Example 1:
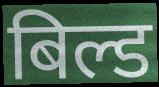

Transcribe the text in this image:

बिल्ड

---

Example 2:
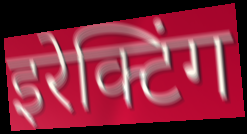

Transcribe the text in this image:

इरेक्टिंग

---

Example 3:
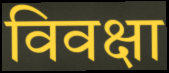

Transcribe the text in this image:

विवक्षा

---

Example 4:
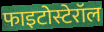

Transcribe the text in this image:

फाइटोस्टेरॉल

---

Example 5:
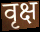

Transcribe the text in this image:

वृक्ष